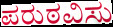
ಪರುಠವಿಸು